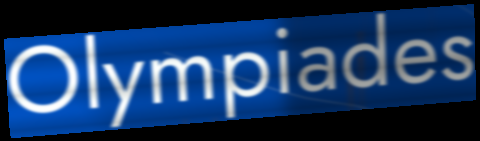
Olympiades